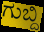
ಗುಬ್ದಿ